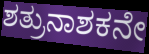
ಶತ್ರುನಾಶಕನೇ